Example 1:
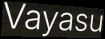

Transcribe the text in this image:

Vayasu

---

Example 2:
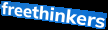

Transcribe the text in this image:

freethinkers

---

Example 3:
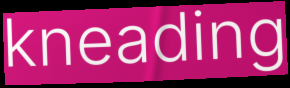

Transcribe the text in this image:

kneading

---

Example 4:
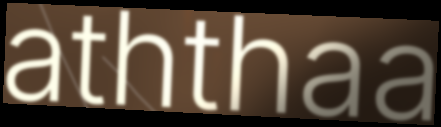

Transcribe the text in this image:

aththaa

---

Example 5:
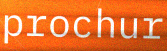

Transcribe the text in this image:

prochur